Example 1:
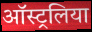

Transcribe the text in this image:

ऑस्ट्रलिया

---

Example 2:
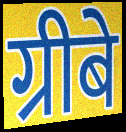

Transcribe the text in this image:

ग्रीबे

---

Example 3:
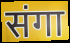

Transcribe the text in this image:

संगा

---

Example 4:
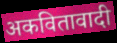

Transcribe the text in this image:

अकवितावादी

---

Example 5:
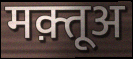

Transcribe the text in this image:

मक़्तूअ